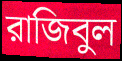
রাজিবুল